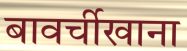
बावर्चीखाना